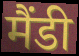
मैंडी